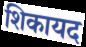
शिकायद